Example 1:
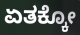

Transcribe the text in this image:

ಏತಕ್ಕೋ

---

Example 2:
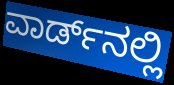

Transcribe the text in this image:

ವಾರ್ಡ್‌ನಲ್ಲಿ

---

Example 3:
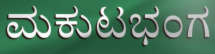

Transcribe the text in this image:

ಮಕುಟಭಂಗ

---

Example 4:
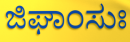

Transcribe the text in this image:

ಜಿಘಾಂಸುಃ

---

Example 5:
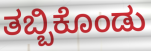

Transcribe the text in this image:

ತಬ್ಬಿಕೊಂಡು